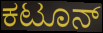
ಕಟೂನ್